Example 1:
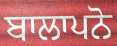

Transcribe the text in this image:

ਬਾਲਾਪਨੋ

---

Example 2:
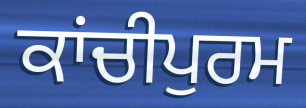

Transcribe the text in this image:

ਕਾਂਚੀਪੁਰਮ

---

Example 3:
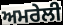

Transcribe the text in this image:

ਅਮਰੇਲੀ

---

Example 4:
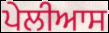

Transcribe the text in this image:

ਪੇਲੀਆਸ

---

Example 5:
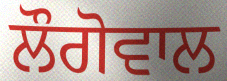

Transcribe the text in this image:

ਲੌਗੋਵਾਲ